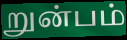
றுன்பம்